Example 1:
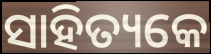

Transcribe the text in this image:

ସାହିତ୍ୟକେ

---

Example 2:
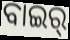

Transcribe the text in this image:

ବାଇର୍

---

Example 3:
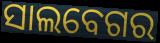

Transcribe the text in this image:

ସାଲବେଗର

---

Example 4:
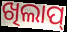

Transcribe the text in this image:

ଖିଲାପ୍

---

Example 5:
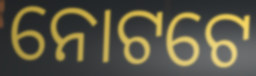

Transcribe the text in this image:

ନୋଟଟେ